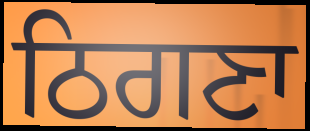
ਠਿਗਣਾ